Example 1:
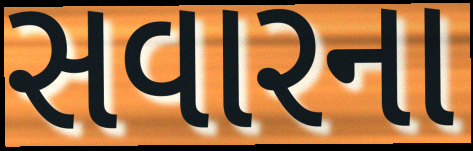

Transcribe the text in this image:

સવારના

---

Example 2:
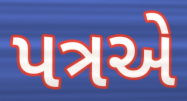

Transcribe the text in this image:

પત્રએ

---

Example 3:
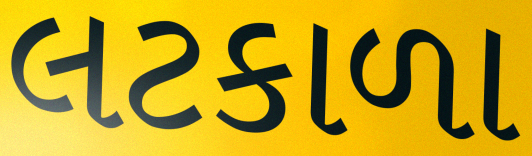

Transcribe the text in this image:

લટકાળા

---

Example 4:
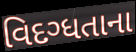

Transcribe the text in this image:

વિદગ્ધતાના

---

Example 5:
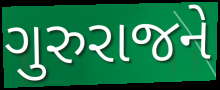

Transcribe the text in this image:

ગુરુરાજને